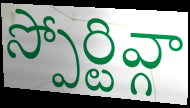
స్పోర్టివ్గా